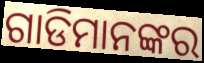
ଗାଡିମାନଙ୍କର